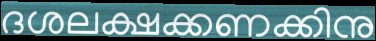
ദശലക്ഷക്കണക്കിനു